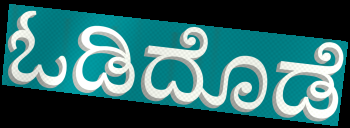
ಓಡಿದೊಡೆ